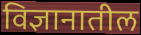
विज्ञानातील